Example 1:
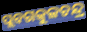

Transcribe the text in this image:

ପ୍ଲବଗକୁଳଚନ୍ଦ୍ର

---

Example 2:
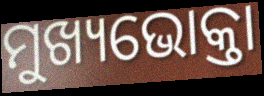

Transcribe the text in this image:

ମୁଖ୍ୟଭୋକ୍ତା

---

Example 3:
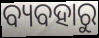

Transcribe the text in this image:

ବ୍ୟବହାରୁ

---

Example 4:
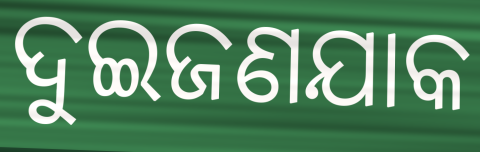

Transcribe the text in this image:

ଦୁଇଜଣଯାକ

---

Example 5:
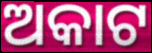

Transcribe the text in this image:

ଅକାଟ